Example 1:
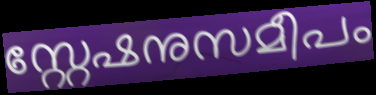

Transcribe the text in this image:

സ്റ്റേഷനുസമീപം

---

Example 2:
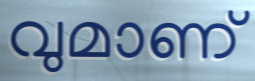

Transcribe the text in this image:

വുമാണ്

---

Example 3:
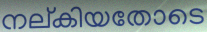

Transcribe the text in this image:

നല്കിയതോടെ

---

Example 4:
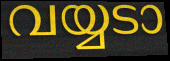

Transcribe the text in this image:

വയ്യടാ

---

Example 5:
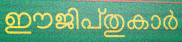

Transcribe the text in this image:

ഈജിപ്തുകാർ